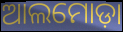
ଆଲମୋଡ଼ା